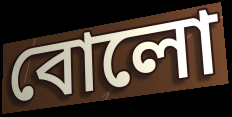
বোলো